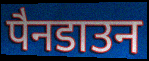
पैनडाउन